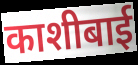
काशीबाई